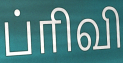
ப்ரிவி